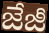
జేజీ